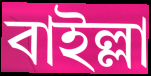
বাইল্লা